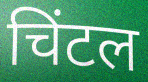
चिंटल